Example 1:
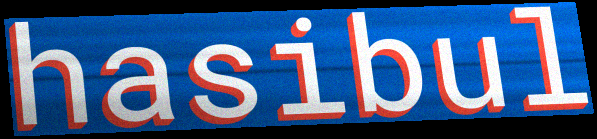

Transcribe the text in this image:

hasibul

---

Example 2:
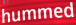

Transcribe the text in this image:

hummed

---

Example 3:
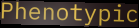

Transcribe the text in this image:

Phenotypic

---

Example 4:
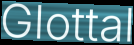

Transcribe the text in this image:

Glottal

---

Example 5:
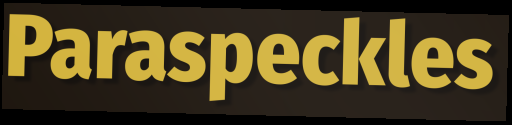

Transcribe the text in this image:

Paraspeckles